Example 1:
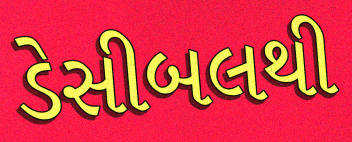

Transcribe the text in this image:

ડેસીબલથી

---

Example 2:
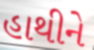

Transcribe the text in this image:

હાથીને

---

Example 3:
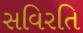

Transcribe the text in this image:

સવિરતિ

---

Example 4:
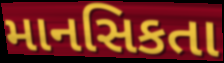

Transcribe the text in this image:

માનસિકતા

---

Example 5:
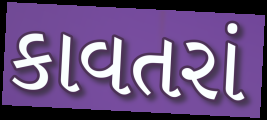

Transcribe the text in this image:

કાવતરાં